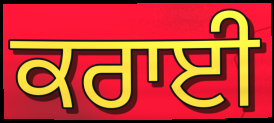
ਕਰਾਈ